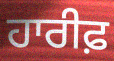
ਹਾਰੀਫ਼